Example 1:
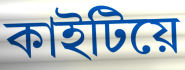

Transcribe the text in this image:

কাইটিয়ে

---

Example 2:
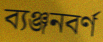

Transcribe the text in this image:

ব্যঞ্জনবৰ্ণ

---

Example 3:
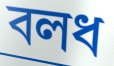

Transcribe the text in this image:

বলধ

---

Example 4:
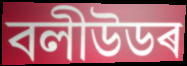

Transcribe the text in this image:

বলীউডৰ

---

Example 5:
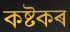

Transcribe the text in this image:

কষ্টকৰ